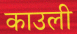
काउली